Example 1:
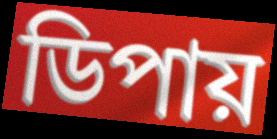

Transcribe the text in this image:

ডিপায়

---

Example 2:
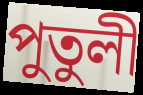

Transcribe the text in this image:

পুতুলী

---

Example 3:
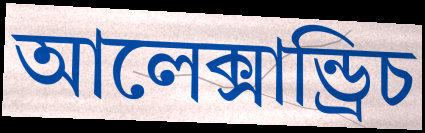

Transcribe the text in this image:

আলেক্সান্ড্রিচ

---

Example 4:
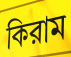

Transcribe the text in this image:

কিরাম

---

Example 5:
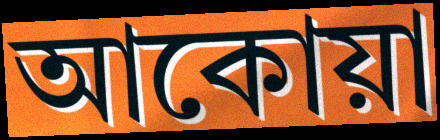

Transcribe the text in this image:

আকোয়া